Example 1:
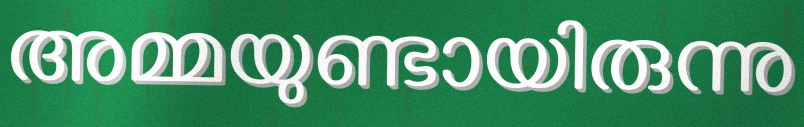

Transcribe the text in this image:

അമ്മയുണ്ടായിരുന്നു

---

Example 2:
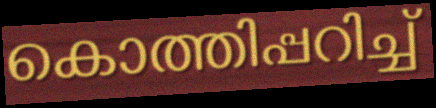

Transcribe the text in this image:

കൊത്തിപ്പറിച്ച്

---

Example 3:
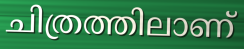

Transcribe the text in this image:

ചിത്രത്തിലാണ്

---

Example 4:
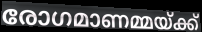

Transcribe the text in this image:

രോഗമാണമ്മയ്ക്ക്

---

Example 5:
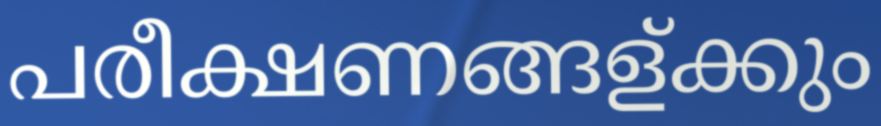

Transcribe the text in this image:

പരീക്ഷണങ്ങള്ക്കും